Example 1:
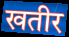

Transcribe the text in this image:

खतीर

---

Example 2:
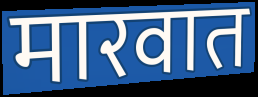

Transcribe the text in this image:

मारवात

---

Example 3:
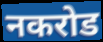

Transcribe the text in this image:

नकरोड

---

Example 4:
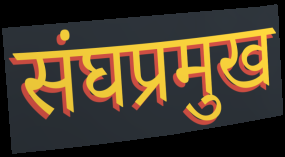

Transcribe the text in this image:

संघप्रमुख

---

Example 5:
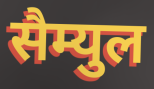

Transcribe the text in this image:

सैम्युल